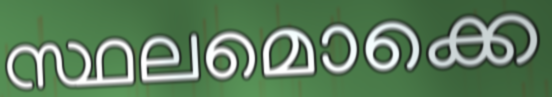
സ്ഥലമൊക്കെ